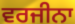
ਵਰਜੀਨਾ